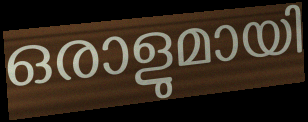
ഒരാളുമായി